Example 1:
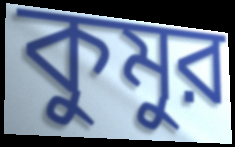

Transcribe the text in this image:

কুমুর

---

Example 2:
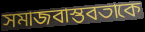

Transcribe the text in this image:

সমাজবাস্তবতাকে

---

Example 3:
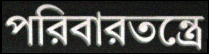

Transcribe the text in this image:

পরিবারতন্ত্রে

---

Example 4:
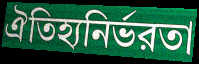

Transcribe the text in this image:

ঐতিহ্যনির্ভরতা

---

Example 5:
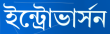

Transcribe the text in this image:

ইন্ট্রোভার্সন